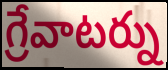
గ్రేవాటర్ను